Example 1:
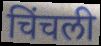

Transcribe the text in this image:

चिंचली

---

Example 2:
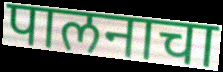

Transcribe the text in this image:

पालनाचा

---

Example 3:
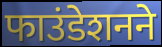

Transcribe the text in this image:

फाउंडेशनने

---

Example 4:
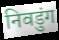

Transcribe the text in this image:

निवडुंग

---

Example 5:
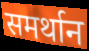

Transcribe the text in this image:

समर्थान